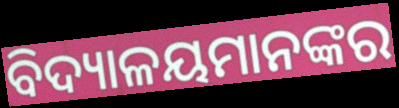
ବିଦ୍ୟାଳୟମାନଙ୍କର